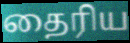
தைரிய